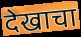
देखाचा